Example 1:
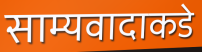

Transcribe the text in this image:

साम्यवादाकडे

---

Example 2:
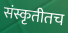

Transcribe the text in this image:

संस्कृतीतच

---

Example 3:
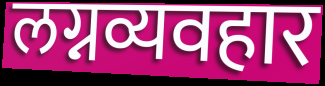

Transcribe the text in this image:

लग्नव्यवहार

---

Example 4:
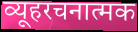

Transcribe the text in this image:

व्यूहरचनात्मक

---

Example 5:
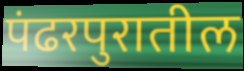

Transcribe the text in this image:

पंढरपुरातील